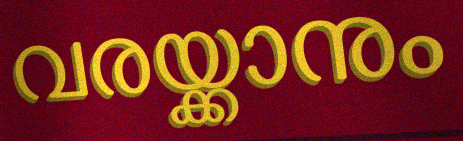
വരയ്ക്കാനും